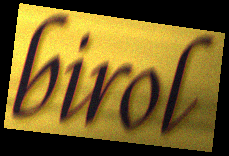
birol